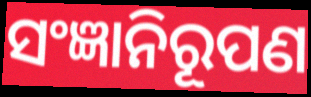
ସଂଜ୍ଞାନିରୂପଣ